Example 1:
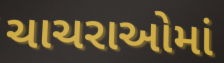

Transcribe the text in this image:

ચાચરાઓમાં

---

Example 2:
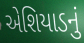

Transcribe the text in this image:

એશિયાડનું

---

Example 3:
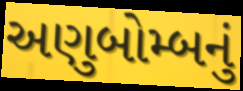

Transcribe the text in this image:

અણુબોમ્બનું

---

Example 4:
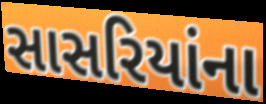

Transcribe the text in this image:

સાસરિયાંના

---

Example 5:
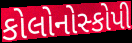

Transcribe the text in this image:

કોલોનોસ્કોપી